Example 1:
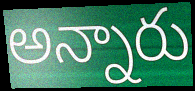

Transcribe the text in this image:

అన్నారు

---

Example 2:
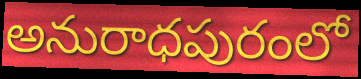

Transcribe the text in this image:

అనురాధపురంలో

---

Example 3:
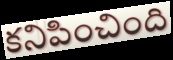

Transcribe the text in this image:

కనిపించింది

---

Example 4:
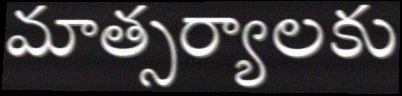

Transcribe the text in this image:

మాత్సర్యాలకు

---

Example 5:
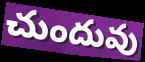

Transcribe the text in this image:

చుందువు